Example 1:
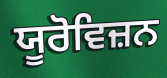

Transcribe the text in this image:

ਯੂਰੋਵਿਜ਼ਨ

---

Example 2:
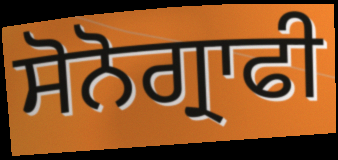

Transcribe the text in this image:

ਸੋਨੋਗ੍ਰਾਫੀ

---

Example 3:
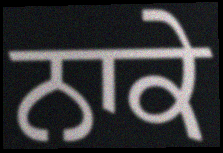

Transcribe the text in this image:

ਨਾਕੇ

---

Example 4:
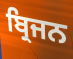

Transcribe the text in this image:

ਬ੍ਰਿਜਨ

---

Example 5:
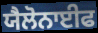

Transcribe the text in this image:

ਯੈਲੋਨਾਈਫ